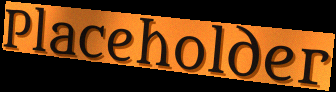
Placeholder